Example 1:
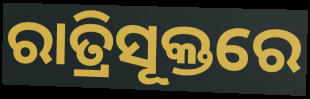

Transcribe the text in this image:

ରାତ୍ରିସୂକ୍ତରେ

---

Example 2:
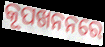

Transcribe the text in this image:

କୂପଖନନରେ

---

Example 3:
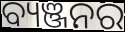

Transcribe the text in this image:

ବ୍ୟଞ୍ଜନର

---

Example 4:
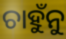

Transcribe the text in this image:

ଚାହୁଁନୁ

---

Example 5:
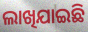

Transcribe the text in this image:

ଲାଖିଯାଇଛି